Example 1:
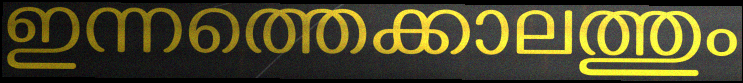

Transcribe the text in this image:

ഇന്നത്തെക്കാലത്തും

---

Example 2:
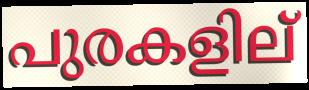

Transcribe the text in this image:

പുരകളില്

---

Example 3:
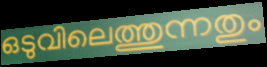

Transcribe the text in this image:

ഒടുവിലെത്തുന്നതും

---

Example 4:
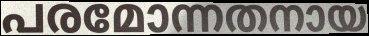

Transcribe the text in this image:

പരമോന്നതനായ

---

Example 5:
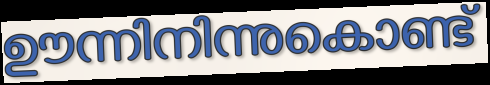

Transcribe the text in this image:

ഊന്നിനിന്നുകൊണ്ട്